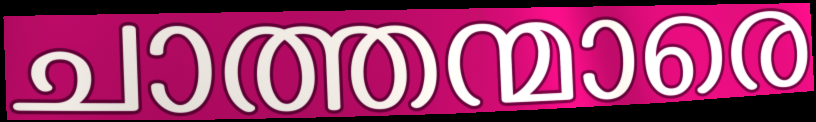
ചാത്തന്മാരെ